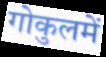
गोकुलमें